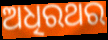
ଅଧିରଥର